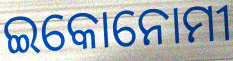
ଇକୋନୋମୀ